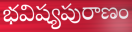
భవిష్యపురాణం